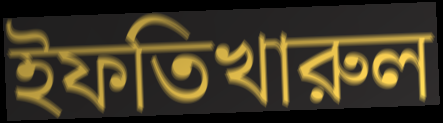
ইফতিখারুল